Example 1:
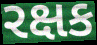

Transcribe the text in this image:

રક્ષક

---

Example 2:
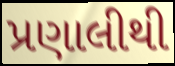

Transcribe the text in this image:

પ્રણાલીથી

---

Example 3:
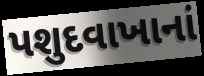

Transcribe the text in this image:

પશુદવાખાનાં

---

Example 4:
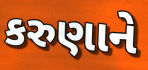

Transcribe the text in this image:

કરુણાને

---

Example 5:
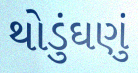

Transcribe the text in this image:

થોડુંઘણું